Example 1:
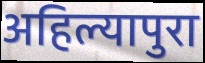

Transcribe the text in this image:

अहिल्यापुरा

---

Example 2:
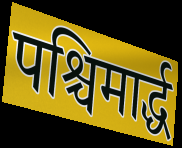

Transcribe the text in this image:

पश्चिमार्द्ध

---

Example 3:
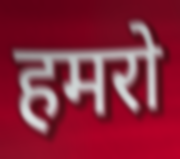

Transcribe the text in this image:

हमरो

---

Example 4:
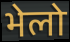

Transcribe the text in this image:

भेलो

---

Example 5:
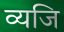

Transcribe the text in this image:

व्यजि